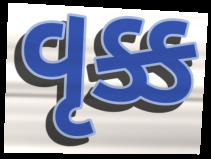
વૃક્ક